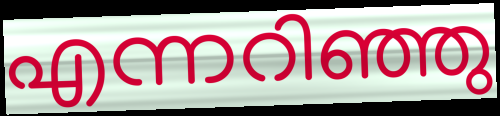
എന്നറിഞ്ഞു